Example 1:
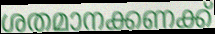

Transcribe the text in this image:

ശതമാനക്കണക്ക്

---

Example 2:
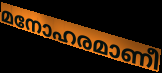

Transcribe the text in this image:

മനോഹരമാണീ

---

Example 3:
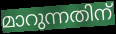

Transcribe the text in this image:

മാറുന്നതിന്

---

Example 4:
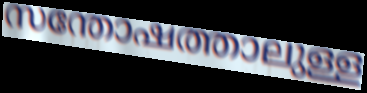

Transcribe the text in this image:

സന്തോഷത്താലുള്ള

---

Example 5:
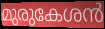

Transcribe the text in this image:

മുരുകേശൻ